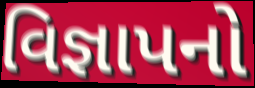
વિજ્ઞાપનો